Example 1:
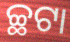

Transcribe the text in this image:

ଚ୍ଛଟା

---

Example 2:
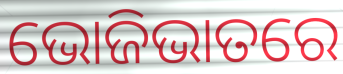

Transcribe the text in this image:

ଭୋଜିଭାତରେ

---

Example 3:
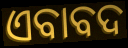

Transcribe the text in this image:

ଏବାବଦ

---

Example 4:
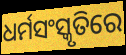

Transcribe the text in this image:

ଧର୍ମସଂସ୍କୃତିରେ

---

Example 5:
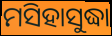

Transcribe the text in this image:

ମସିହାସୁଦ୍ଧା